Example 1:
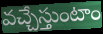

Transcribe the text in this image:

వచ్చేస్తుంటాం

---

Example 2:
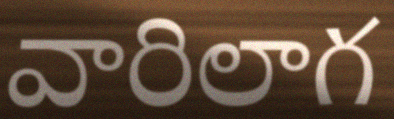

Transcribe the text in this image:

వారిలాగ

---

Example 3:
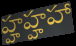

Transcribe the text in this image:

హ్హహ్హహా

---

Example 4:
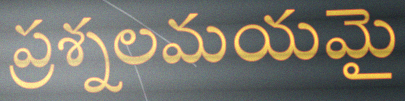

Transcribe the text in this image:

ప్రశ్నలమయమై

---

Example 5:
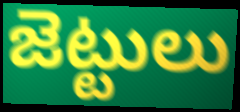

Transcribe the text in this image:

జెట్టులు